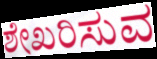
ಶೇಖರಿಸುವ